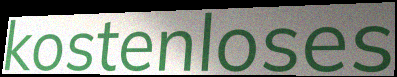
kostenloses